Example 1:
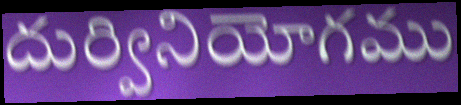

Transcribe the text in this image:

దుర్వినియోగము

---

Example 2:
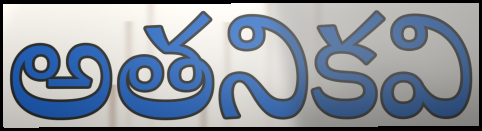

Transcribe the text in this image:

అతనికవి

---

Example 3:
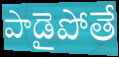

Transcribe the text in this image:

పాడైపోతే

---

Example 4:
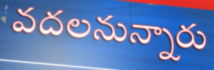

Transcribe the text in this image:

వదలనున్నారు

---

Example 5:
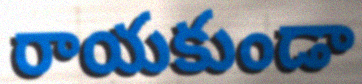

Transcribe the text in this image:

రాయకుండా